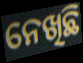
ନେଖିଛି